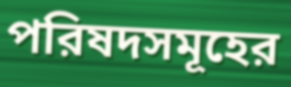
পরিষদসমূহের